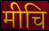
मीचि